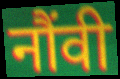
नौंवी